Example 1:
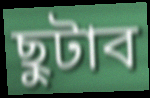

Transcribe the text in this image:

ছুটাব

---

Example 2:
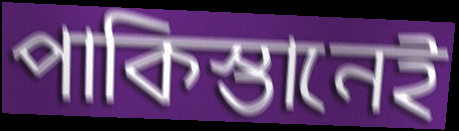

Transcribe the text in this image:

পাকিস্তানেই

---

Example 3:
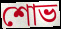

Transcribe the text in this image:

শোভ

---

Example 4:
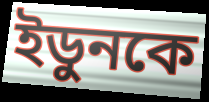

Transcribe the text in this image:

ইডুনকে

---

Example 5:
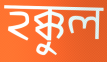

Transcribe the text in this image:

হক্কুল